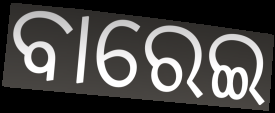
ବାରେଇ